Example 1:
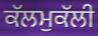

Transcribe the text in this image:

ਕੱਲਮੁਕੱਲੀ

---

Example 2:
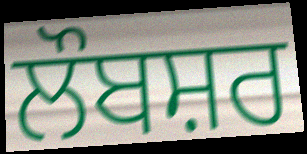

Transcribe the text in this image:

ਲੌਬਸ਼ਰ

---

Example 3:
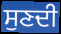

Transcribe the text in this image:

ਸੁਣਦੀ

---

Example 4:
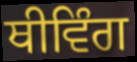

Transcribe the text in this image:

ਥੀਵਿੰਗ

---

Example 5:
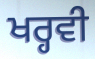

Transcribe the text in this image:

ਖਰ੍ਹਵੀ